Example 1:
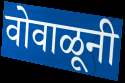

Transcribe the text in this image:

वोवाळूनी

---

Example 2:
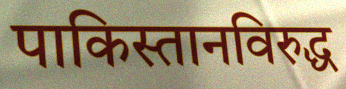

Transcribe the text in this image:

पाकिस्तानविरुद्ध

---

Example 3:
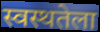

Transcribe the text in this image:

स्वस्थतेला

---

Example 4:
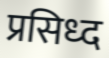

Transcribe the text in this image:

प्रसिध्द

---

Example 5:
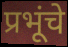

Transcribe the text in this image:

प्रभूंचे